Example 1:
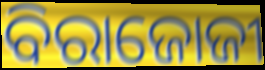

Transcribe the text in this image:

ବିରାଜୋଜୀ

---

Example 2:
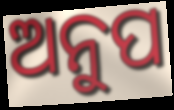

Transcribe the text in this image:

ଅନୁପ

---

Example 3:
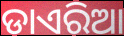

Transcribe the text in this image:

ଡାଏରିଆ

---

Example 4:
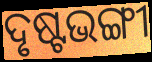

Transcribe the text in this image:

ଦୃଷ୍ଟଭଙ୍ଗୀ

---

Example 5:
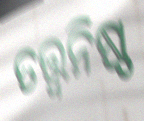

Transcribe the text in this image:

ତତ୍ତ୍ୱନିଷ୍ଠ